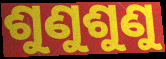
ଶୁଣୁଶୁଣୁ